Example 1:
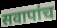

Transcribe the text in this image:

सवापांच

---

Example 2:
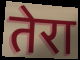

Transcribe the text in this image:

तेरा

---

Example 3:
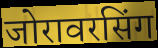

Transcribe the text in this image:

जोरावरसिंग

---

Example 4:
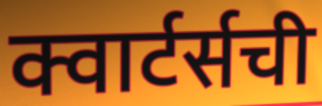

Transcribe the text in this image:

क्वार्टर्सची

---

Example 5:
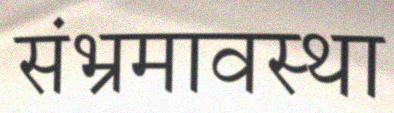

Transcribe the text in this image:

संभ्रमावस्था